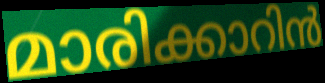
മാരിക്കാറിൻ